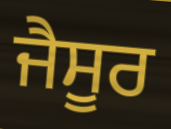
ਜੈਸੂਰ